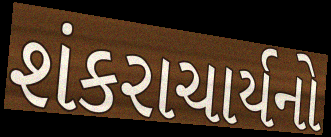
શંકરાચાર્યનો